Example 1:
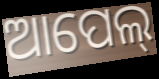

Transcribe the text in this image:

ଆପେଲ୍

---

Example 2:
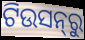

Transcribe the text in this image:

ଟିଉସନ୍‌ରୁ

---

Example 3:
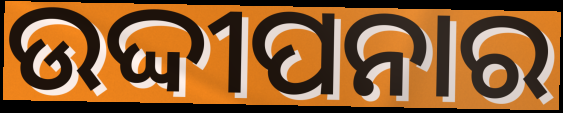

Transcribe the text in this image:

ଉଦ୍ଦୀପନାର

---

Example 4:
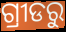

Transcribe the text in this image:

ଗ୍ରୀଡରୁ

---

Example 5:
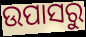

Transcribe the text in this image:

ଉପାସରୁ